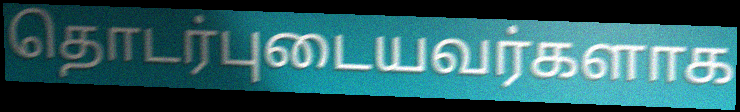
தொடர்புடையவர்களாக